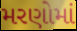
મરણોમાં